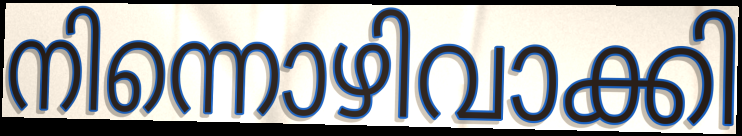
നിന്നൊഴിവാക്കി